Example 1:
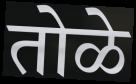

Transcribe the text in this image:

तोळे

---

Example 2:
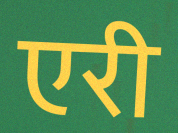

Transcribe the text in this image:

एरी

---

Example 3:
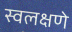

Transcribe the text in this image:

स्वलक्षणे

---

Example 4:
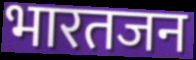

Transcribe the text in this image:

भारतजन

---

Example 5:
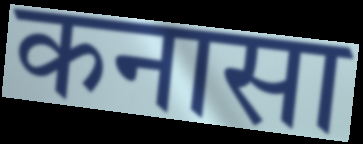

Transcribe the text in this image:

कनासा